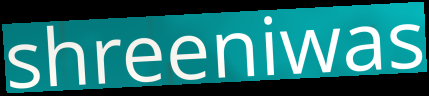
shreeniwas